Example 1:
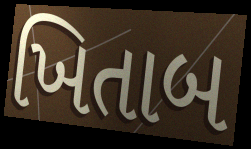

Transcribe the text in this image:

ખિતાબ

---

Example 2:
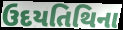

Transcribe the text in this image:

ઉદયતિથિના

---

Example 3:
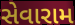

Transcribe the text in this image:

સેવારામ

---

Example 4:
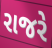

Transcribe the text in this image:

રાજરે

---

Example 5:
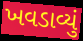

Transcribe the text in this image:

ખવડાવ્યું